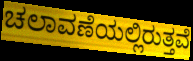
ಚಲಾವಣೆಯಲ್ಲಿರುತ್ತವೆ